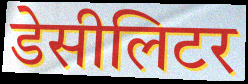
डेसीलिटर